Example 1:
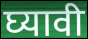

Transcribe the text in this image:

घ्यावी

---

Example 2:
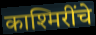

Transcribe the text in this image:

काश्मिरींचे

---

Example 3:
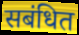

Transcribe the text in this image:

सबंधित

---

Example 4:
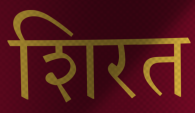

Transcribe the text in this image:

शिरत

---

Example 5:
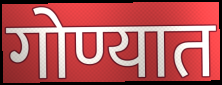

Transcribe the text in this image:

गोण्यात